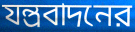
যন্ত্রবাদনের